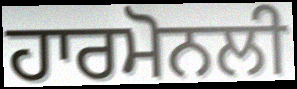
ਹਾਰਮੋਨਲੀ